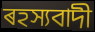
ৰহস্যবাদী